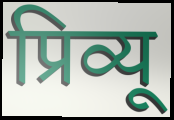
प्रिव्यू